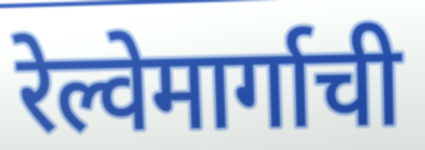
रेल्वेमार्गाची